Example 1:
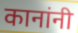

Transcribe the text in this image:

कानांनी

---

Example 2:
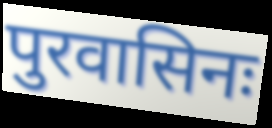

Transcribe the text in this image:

पुरवासिनः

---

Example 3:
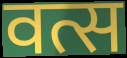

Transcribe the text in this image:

वत्स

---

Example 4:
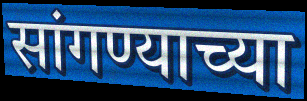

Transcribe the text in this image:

सांगण्याच्या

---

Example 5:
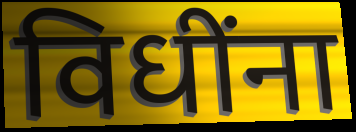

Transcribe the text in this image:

विधींना